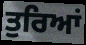
ਤੁਰਿਆਂ